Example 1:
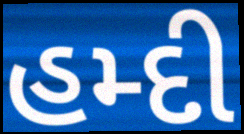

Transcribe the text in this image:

હમ્દી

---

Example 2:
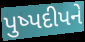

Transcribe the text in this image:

પુષ્પદીપને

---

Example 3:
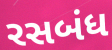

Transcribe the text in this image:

રસબંધ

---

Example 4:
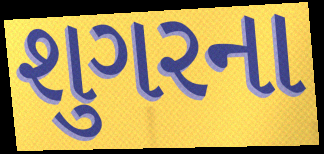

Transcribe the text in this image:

શુગરના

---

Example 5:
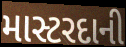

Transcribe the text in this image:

માસ્ટરદાની